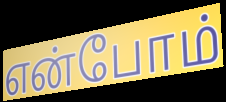
என்போம்